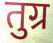
तुग्र